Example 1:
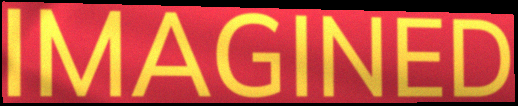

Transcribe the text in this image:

IMAGINED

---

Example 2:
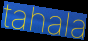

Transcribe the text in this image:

tahala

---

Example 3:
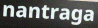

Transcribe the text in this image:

nantraga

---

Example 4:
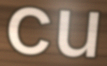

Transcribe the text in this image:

cu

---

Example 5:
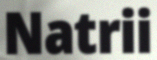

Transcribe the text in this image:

Natrii